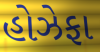
હોઝેફા